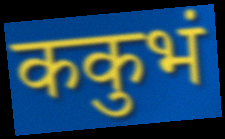
ककुभं